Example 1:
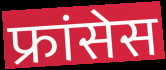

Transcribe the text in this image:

फ्रांसेस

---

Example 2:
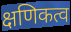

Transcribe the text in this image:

क्षणिकत्व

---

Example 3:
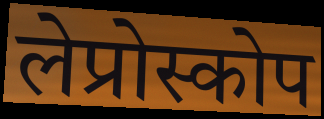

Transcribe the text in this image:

लेप्रोस्कोप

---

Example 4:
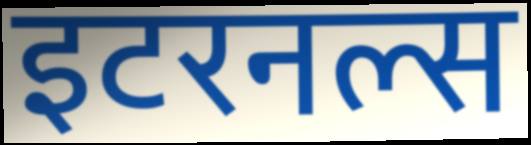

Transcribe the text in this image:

इटरनल्स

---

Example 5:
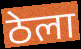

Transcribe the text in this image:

ठेला